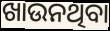
ଖାଉନଥିବା